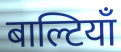
बाल्टियाँ